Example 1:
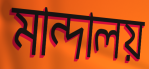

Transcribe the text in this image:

মান্দালয়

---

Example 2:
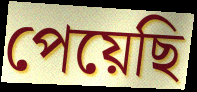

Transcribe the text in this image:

পেয়েছি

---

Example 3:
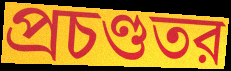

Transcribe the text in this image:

প্রচণ্ডতর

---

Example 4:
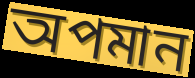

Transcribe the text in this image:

অপমান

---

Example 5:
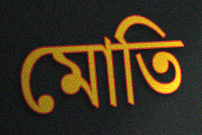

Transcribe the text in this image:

মোতি